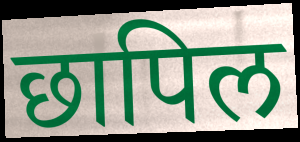
छापिल